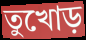
তুখোড়